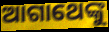
ଆଗାଥେଙ୍କୁ